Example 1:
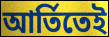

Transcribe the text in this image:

আর্তিতেই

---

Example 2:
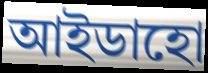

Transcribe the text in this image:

আইডাহো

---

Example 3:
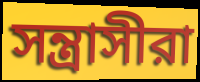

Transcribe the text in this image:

সন্ত্রাসীরা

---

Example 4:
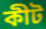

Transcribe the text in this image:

কীট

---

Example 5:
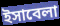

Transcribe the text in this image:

ইসাবেলা